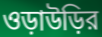
ওড়াউড়ির